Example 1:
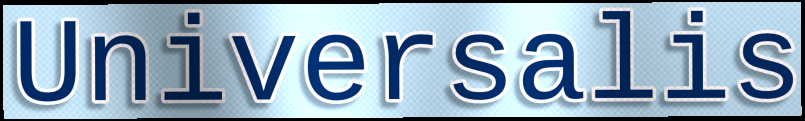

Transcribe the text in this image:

Universalis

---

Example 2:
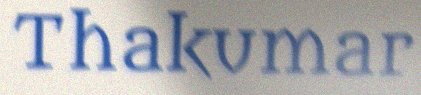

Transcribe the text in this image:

Thakumar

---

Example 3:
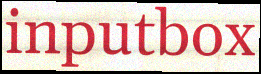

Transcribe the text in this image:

inputbox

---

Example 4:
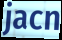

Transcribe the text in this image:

jacn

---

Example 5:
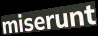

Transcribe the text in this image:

miserunt